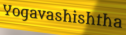
Yogavashishtha